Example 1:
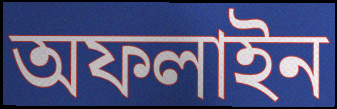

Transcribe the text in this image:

অফলাইন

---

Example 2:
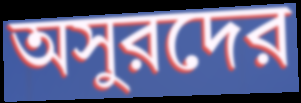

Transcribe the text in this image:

অসুরদের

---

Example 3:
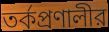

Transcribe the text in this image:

তর্কপ্রণালীর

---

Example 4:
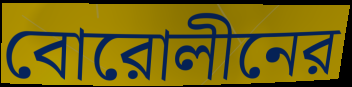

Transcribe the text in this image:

বোরোলীনের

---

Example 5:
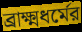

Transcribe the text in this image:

ব্রাক্ষ্মধর্মের